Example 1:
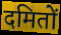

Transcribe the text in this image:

दमितों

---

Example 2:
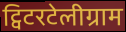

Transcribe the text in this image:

ट्विटरटेलीग्राम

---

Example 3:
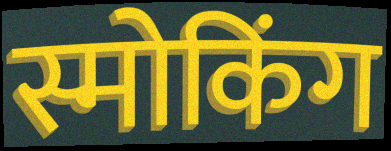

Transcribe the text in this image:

स्मोकिंग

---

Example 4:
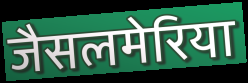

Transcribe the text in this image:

जैसलमेरिया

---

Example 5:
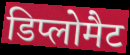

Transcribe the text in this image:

डिप्लोमैट